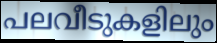
പലവീടുകളിലും